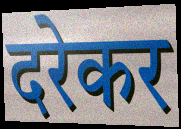
दरेकर